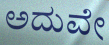
ಅದುವೇ